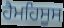
ਹੈਮਹਿਸੂਸ